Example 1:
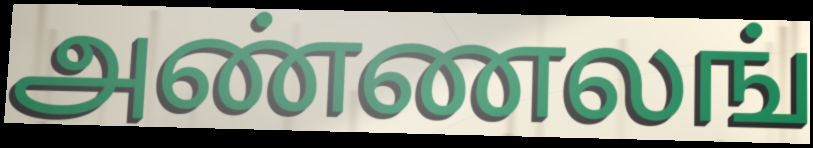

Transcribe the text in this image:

அண்ணலங்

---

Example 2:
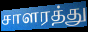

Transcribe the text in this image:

சாளரத்து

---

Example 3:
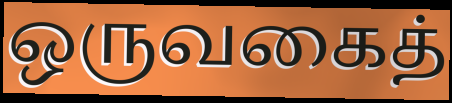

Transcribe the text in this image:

ஒருவகைத்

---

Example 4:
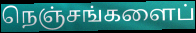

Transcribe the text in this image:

நெஞ்சங்களைப்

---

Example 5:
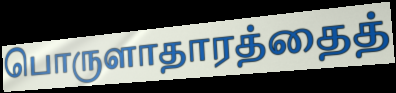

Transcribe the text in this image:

பொருளாதாரத்தைத்